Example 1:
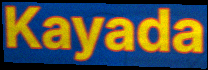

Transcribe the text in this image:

Kayada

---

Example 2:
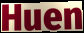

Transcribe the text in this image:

Huen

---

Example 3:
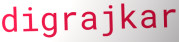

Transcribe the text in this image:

digrajkar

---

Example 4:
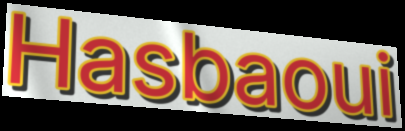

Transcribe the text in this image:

Hasbaoui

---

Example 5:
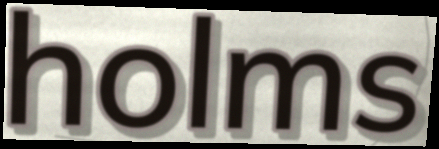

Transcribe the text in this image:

holms